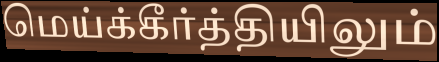
மெய்க்கீர்த்தியிலும்